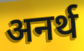
अनर्थ